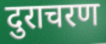
दुराचरण